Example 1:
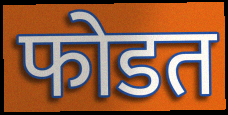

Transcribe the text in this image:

फोडत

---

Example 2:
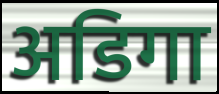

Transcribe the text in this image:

अडिगा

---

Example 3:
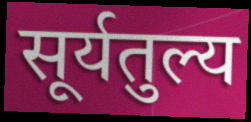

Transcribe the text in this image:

सूर्यतुल्य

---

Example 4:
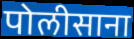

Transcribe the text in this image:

पोलीसाना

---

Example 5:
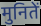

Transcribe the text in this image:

मुनितें